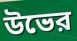
উভের